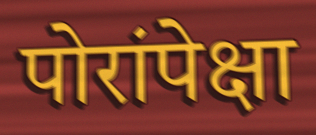
पोरांपेक्षा